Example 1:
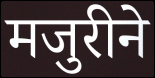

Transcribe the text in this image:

मजुरीने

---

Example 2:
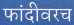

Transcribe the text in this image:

फांदीवरच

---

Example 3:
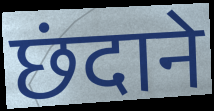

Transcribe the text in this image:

छंदाने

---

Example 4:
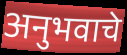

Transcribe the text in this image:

अनुभवाचे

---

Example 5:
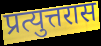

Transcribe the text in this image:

प्रत्युत्तरास